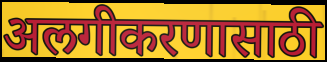
अलगीकरणासाठी